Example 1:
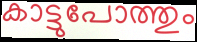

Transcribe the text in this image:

കാട്ടുപോത്തും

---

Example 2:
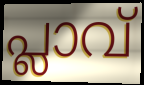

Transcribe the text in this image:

പ്ലാവ്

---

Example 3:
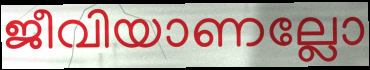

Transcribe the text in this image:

ജീവിയാണല്ലോ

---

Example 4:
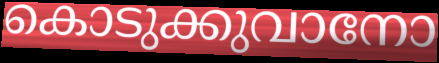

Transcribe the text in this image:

കൊടുക്കുവാനോ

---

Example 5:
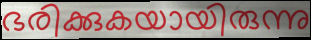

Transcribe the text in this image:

ഭരിക്കുകയായിരുന്നു